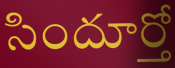
సిందూర్తో